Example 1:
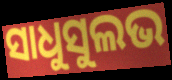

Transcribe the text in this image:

ସାଧୁସୁଲଭ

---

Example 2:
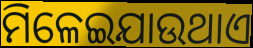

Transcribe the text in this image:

ମିଳେଇଯାଉଥାଏ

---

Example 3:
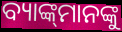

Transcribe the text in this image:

ବ୍ୟାଙ୍କ୍‌ମାନଙ୍କୁ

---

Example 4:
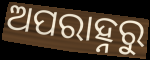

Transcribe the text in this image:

ଅପରାହ୍ନରୁ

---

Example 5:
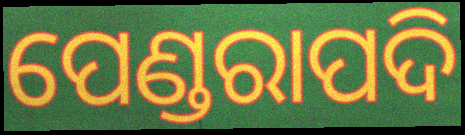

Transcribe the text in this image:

ପେଣ୍ଡରାପଦି